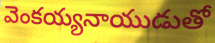
వెంకయ్యనాయుడుతో